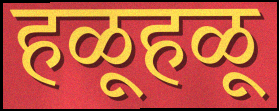
हळूहळू